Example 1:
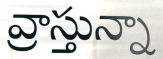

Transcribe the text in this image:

వ్రాస్తున్నా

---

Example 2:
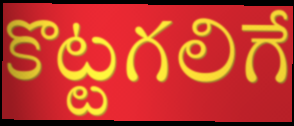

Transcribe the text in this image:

కొట్టగలిగే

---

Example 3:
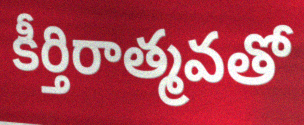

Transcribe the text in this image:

కీర్తిరాత్మవతో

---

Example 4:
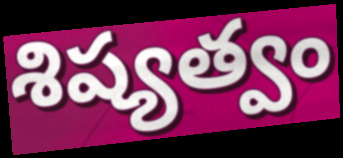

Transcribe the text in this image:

శిష్యత్వం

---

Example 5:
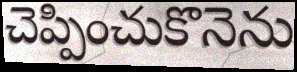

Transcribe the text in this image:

చెప్పించుకొనెను